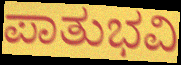
ಪಾತುಭವಿ